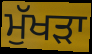
ਮੁੱਖੜਾ